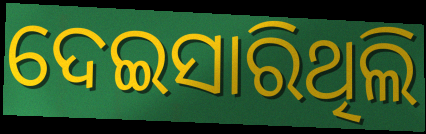
ଦେଇସାରିଥିଲି